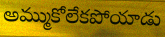
అమ్ముకోలేకపోయాడు